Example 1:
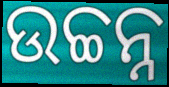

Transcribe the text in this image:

ଉଚ୍ଚନ୍ନ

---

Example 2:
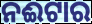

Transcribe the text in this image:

ନଈଟାର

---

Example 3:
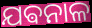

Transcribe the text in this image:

ଯଵନାଳ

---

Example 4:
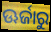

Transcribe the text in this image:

ଊର୍ଜାରୁ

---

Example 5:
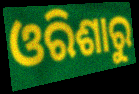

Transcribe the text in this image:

ଓରିଶାରୁ